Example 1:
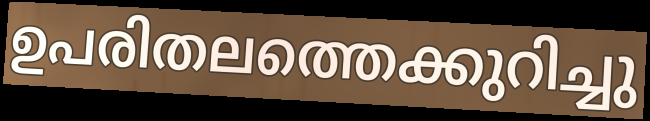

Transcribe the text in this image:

ഉപരിതലത്തെക്കുറിച്ചു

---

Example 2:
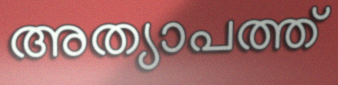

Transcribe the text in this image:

അത്യാപത്ത്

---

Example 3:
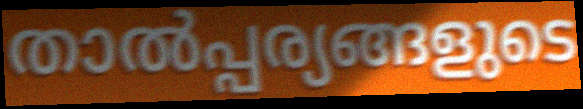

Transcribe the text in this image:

താൽപ്പര്യങ്ങളുടെ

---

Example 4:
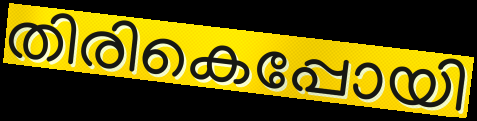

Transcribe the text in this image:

തിരികെപ്പോയി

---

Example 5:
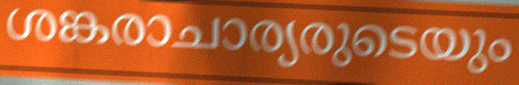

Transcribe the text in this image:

ശങ്കരാചാര്യരുടെയും